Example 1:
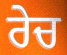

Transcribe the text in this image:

ਰੇਚ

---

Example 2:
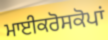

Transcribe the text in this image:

ਮਾਈਕਰੋਸਕੋਪਾਂ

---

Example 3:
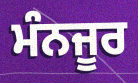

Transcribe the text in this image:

ਮੰਨਜੂਰ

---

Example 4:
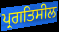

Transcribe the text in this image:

ਪ੍ਰਗਤਿਸੀਲ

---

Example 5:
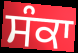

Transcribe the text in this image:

ਸੰਕਾ